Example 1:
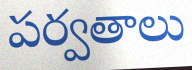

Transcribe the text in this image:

పర్వతాలు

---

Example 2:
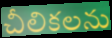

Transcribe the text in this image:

చీలికలను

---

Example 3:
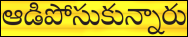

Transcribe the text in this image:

ఆడిపోసుకున్నారు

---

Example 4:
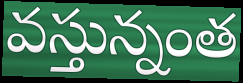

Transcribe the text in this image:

వస్తున్నంత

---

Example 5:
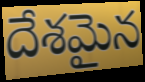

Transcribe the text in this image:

దేశమైన